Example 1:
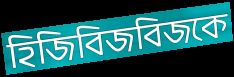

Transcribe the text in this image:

হিজিবিজবিজকে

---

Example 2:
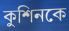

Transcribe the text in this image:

কুশিনকে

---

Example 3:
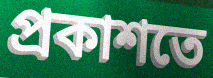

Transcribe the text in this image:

প্রকাশতে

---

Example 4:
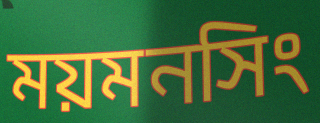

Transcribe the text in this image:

ময়মনসিং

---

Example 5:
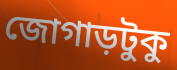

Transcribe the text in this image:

জোগাড়টুকু